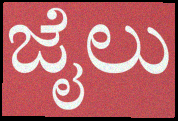
ಜೈಲು